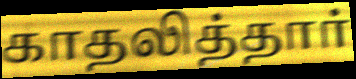
காதலித்தார்